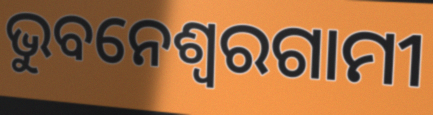
ଭୁବନେଶ୍ୱରଗାମୀ